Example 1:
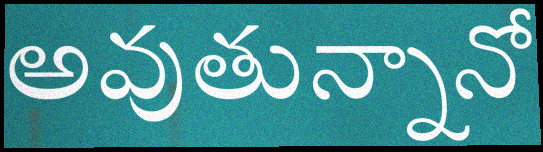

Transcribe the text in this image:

అవుతున్నానో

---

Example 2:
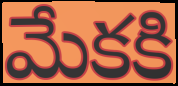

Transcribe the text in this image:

మేకకి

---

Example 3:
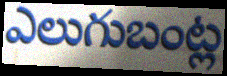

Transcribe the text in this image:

ఎలుగుబంట్ల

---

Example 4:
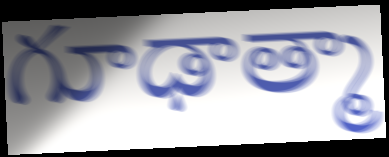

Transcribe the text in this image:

గూఢాత్మా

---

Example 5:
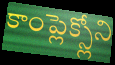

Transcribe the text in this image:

కాంప్లెక్స్లోని